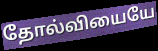
தோல்வியையே